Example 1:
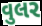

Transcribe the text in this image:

વુલર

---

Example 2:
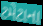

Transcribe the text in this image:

ટમેટાના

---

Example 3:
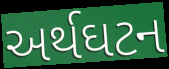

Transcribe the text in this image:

અર્થઘટન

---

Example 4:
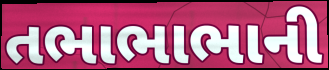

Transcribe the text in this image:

તભાભાભાની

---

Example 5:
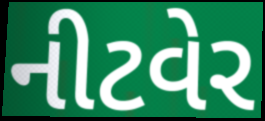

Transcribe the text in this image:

નીટવેર